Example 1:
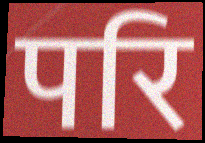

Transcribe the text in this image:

परि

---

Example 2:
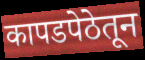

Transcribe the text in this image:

कापडपेठेतून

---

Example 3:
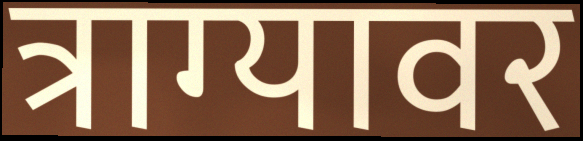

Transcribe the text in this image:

त्राग्यावर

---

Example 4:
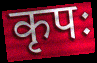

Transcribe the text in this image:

कृपः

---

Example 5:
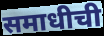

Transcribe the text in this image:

समाधीची